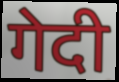
गेदी